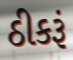
ઠીકરૂં